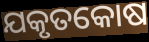
ଯକୃତକୋଷ